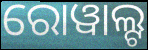
ରୋୱାଲ୍ଟ